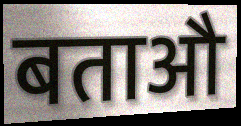
बताऔ